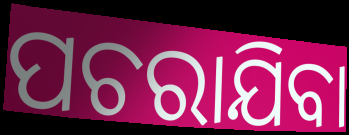
ପଚରାଯିବା